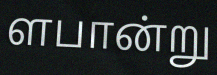
ளபான்று